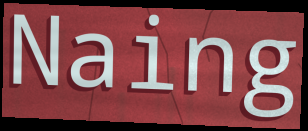
Naing